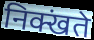
निक्खंते